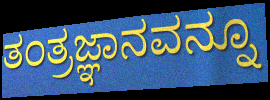
ತಂತ್ರಜ್ಞಾನವನ್ನೂ